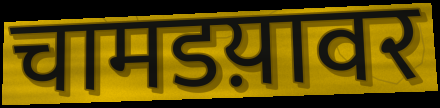
चामडय़ावर